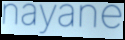
nayane